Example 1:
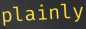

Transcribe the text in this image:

plainly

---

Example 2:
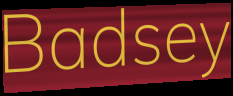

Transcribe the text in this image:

Badsey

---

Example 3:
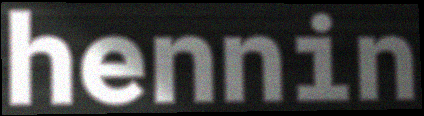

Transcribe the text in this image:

hennin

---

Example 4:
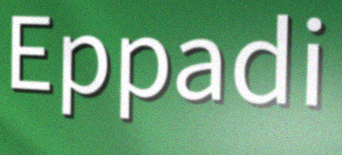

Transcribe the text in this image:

Eppadi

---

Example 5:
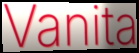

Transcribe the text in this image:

Vanita